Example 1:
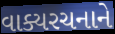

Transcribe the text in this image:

વાક્યરચનાને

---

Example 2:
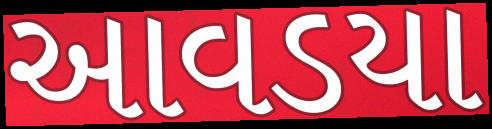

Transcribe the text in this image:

આવડયા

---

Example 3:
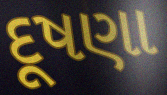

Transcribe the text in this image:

દૂષણા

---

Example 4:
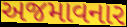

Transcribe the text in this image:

અજમાવનાર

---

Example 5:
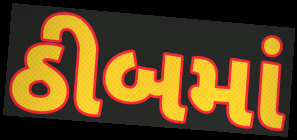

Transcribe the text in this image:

ઠીબમાં